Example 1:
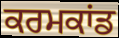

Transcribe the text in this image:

ਕਰਮਕਾਂਡ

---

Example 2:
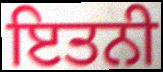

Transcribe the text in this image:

ਇਤਨੀ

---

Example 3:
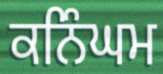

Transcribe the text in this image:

ਕਨਿੰਘਮ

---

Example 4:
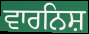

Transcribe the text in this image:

ਵਾਰਨਿਸ਼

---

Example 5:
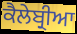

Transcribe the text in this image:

ਕੈਲੇਬ੍ਰੀਆ